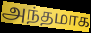
அந்தமாக